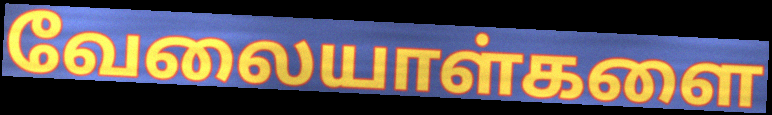
வேலையாள்களை